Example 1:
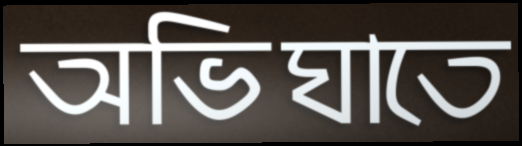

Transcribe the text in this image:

অভিঘাতে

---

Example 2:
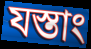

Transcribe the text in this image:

যস্তাং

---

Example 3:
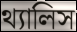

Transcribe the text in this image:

থ্যালিস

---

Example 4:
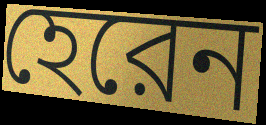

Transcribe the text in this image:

হেরেন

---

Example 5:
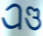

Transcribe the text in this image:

এণ্ড